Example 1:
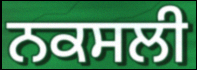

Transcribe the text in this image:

ਨਕਸਲੀ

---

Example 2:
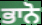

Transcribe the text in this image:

ਭਾਨੋ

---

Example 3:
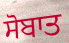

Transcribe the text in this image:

ਸੋਬਾਤ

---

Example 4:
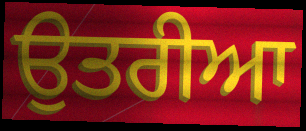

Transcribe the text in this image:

ਉਤਰੀਆ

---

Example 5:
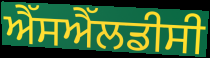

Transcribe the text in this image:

ਐੱਸਐੱਲਡੀਸੀ